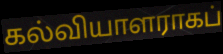
கல்வியாளராகப்